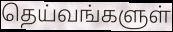
தெய்வங்களுள்